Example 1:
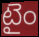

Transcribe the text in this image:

టైం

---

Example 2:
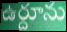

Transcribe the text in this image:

ఉర్దూను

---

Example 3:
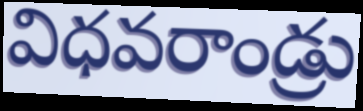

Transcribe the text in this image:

విధవరాండ్రు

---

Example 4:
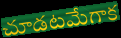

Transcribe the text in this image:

చూడటమేగాక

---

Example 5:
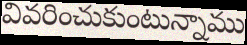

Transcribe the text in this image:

వివరించుకుంటున్నాము